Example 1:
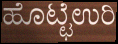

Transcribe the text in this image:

ಹೊಟ್ಟೆಉರಿ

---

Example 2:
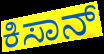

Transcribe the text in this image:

ಕಿಸಾನ್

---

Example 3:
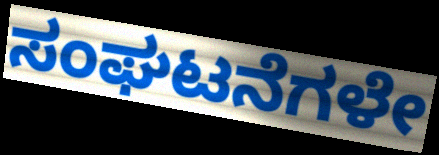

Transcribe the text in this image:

ಸಂಘಟನೆಗಳೇ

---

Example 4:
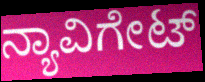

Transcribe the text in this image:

ನ್ಯಾವಿಗೇಟ್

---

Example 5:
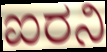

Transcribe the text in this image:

ಐರನಿ